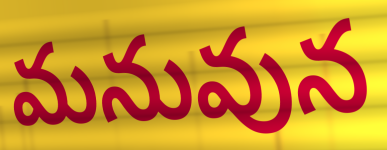
మనువున